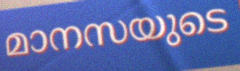
മാനസയുടെ